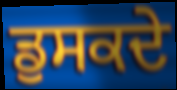
ਡੁਸਕਦੇ